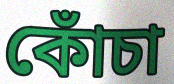
কোঁচা